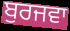
ਬੁਰਜਵਾ